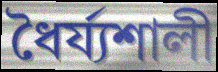
ধৈর্য্যশালী